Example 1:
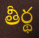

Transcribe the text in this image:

తీర్థ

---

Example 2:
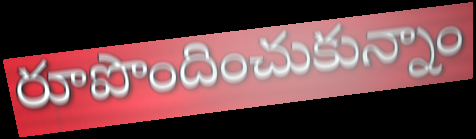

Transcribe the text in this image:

రూపొందించుకున్నాం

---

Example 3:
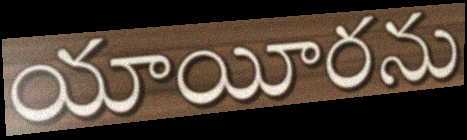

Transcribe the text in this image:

యాయీరను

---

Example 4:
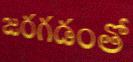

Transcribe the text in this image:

జరగడంతో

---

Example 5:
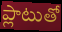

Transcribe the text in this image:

ప్లాటుతో